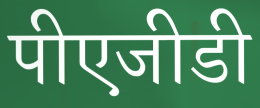
पीएजीडी